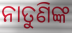
ନାତୁଣିଙ୍କ